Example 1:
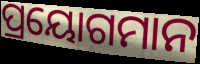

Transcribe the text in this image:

ପ୍ରୟୋଗମାନ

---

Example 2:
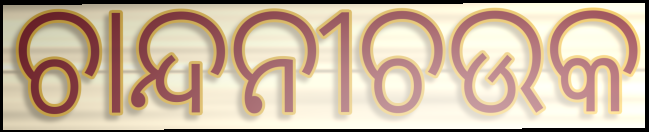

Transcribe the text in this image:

ଚାନ୍ଦନୀଚଉକ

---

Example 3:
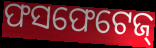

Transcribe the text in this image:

ଫସଫେଟେଜ୍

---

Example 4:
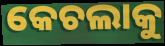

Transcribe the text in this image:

କେଚଲାକୁ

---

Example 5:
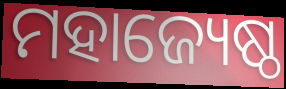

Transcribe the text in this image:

ମହାଜ୍ୟେଷ୍ଠ